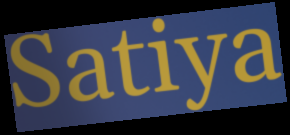
Satiya